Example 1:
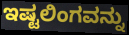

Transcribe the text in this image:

ಇಷ್ಟಲಿಂಗವನ್ನು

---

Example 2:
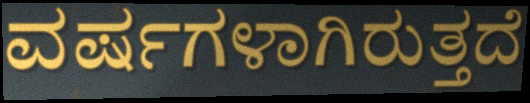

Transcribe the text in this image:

ವರ್ಷಗಳಾಗಿರುತ್ತದೆ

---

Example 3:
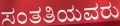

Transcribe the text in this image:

ಸಂತತಿಯವರು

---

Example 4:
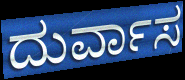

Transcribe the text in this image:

ದುರ್ವಾಸ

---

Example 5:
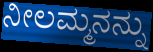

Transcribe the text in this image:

ನೀಲಮ್ಮನನ್ನು